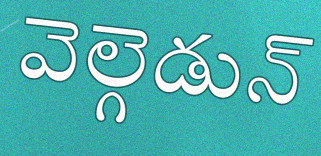
వెల్గెడున్